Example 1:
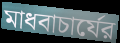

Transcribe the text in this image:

মাধবাচার্যের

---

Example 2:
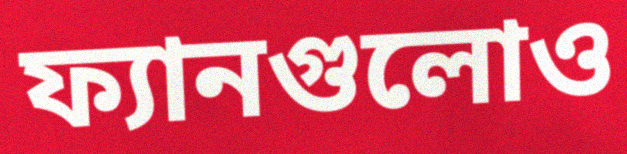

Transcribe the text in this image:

ফ্যানগুলোও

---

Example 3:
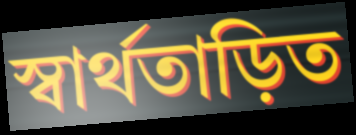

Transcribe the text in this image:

স্বার্থতাড়িত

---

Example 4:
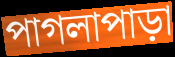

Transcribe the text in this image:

পাগলাপাড়া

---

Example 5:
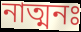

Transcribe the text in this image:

নাত্মনঃ